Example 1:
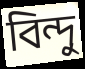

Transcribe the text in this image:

বিন্দু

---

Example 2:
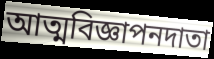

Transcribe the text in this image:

আত্মবিজ্ঞাপনদাতা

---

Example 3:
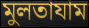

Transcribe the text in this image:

মুলতাযাম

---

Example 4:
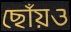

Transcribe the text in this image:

ছোঁয়ও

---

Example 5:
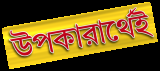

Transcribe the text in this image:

উপকারার্থেই